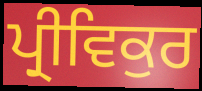
ਪ੍ਰੀਵਿਕੁਰ